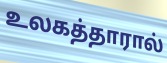
உலகத்தாரால்